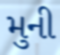
મુની